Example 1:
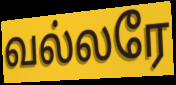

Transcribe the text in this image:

வல்லரே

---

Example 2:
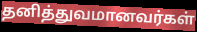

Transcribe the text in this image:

தனித்துவமானவர்கள்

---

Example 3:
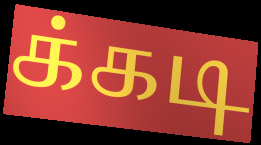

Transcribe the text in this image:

க்கடி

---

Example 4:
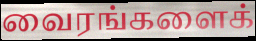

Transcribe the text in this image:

வைரங்களைக்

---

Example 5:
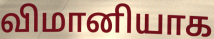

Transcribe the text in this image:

விமானியாக